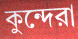
কুন্দেরা